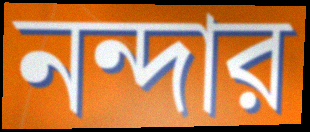
নন্দার